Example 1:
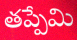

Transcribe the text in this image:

తప్పేమి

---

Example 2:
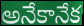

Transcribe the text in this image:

అనేకానేక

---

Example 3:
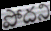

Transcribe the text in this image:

పోదని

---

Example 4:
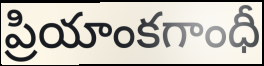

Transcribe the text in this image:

ప్రియాంకగాంధీ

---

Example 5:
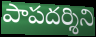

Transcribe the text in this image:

పాపదర్శిని